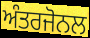
ਅੰਤਰਜੋਨਲ